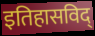
इतिहासविद्